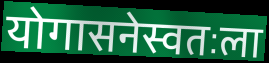
योगासनेस्वतःला